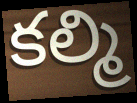
కల్మి